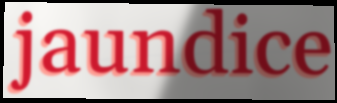
jaundice